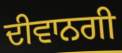
ਦੀਵਾਨਗੀ